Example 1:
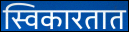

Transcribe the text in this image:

स्विकारतात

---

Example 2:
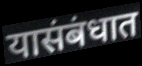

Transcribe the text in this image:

यासंबंधात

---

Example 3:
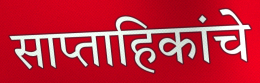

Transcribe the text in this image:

साप्ताहिकांचे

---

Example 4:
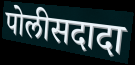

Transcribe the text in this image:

पोलीसदादा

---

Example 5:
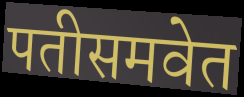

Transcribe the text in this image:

पतीसमवेत